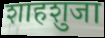
शाहशुजा